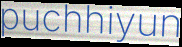
puchhiyun